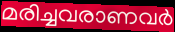
മരിച്ചവരാണവർ